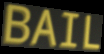
BAIL